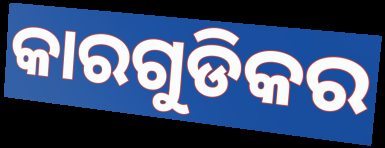
କାରଗୁଡିକର